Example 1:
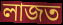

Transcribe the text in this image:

লাজত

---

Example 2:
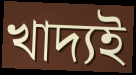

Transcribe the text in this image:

খাদ্যই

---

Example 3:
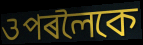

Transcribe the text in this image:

ওপৰলৈকে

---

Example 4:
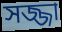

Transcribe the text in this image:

সজ্জা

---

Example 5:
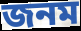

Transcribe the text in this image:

জনম